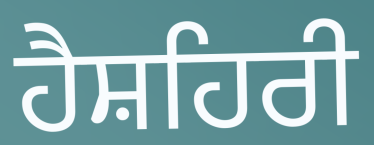
ਹੈਸ਼ਹਿਰੀ